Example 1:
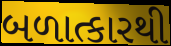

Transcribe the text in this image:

બળાત્કારથી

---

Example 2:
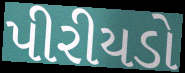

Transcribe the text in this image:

પીરીયડો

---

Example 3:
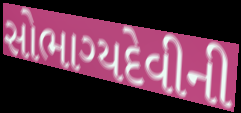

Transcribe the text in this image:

સોભાગ્યદેવીની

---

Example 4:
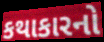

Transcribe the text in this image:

કથાકારનો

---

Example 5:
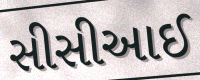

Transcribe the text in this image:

સીસીઆઈ